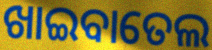
ଖାଇବାତେଲ